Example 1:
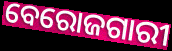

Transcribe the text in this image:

ବେରୋଜଗାରୀ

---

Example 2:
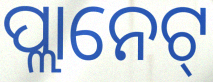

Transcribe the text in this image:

ପ୍ଲାନେଟ୍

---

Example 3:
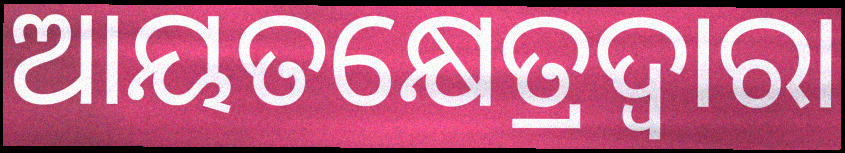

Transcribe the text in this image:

ଆୟତକ୍ଷେତ୍ରଦ୍ଵାରା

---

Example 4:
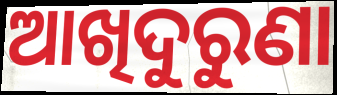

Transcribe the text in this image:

ଆଖିଦୁରୁଣା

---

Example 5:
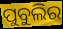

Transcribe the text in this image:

ପୁବୁଲିର